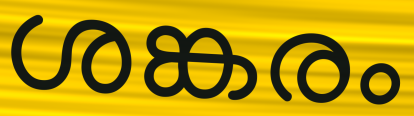
ശങ്കരം